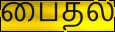
பைதல